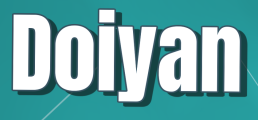
Doiyan